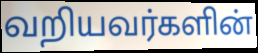
வறியவர்களின்